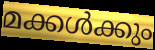
മക്കൾക്കും